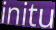
initu